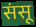
संसू